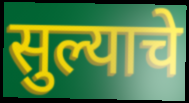
सुल्याचे